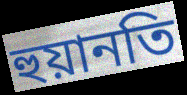
হুয়ানতি